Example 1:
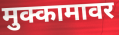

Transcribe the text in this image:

मुक्कामावर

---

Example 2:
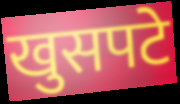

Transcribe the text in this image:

खुसपटे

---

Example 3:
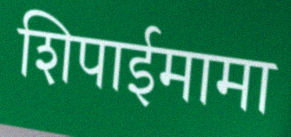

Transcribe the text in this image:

शिपाईमामा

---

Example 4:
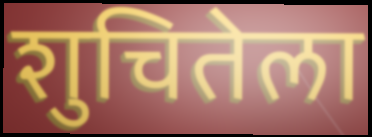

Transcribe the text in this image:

शुचितेला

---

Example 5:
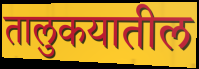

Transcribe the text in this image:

तालुकयातील